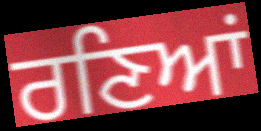
ਰਣਿਆਂ